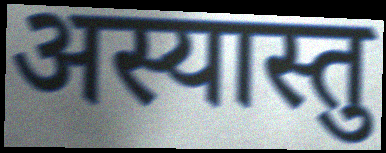
अस्यास्तु